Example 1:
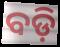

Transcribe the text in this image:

ବଡ଼ି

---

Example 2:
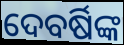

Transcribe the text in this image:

ଦେବର୍ଷିଙ୍କ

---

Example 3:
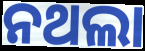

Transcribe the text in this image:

ନଥଲା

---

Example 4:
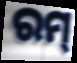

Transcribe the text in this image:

ରମ୍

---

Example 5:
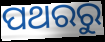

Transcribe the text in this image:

ପଥରରୁ